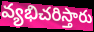
వ్యభిచరిస్తారు